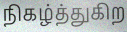
நிகழ்த்துகிற